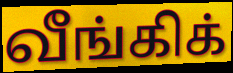
வீங்கிக்